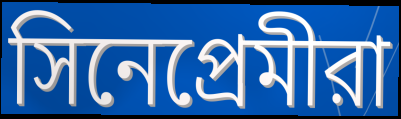
সিনেপ্রেমীরা